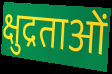
क्षुद्रताओं